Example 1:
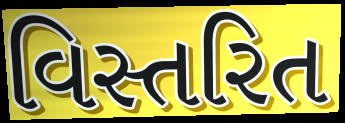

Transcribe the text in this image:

વિસ્તરિત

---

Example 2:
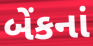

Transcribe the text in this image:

બેંકનાં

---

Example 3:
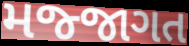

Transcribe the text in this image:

મજ્જાગત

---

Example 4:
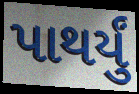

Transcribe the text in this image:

પાથર્યું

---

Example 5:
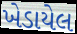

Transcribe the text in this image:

ખેડાયેલ